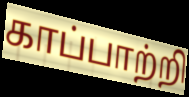
காப்பாற்றி